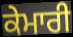
ਕੇਮਾਰੀ